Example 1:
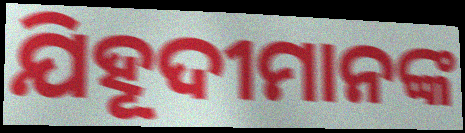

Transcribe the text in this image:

ଯିହୂଦୀମାନଙ୍କ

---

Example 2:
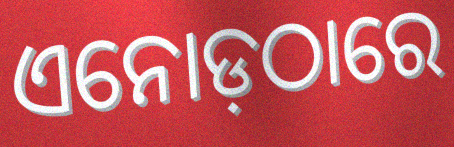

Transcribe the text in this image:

ଏନୋଡ଼ଠାରେ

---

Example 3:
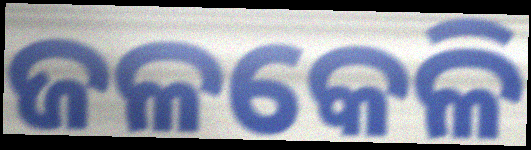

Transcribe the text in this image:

ଜଳକେଳି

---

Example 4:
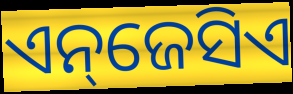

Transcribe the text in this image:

ଏନ୍‌ଜେସିଏ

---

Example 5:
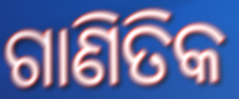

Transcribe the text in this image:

ଗାଣିତିକ